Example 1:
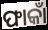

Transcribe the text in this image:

ଫାକାଁ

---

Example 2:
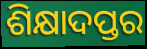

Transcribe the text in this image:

ଶିକ୍ଷାଦପ୍ତର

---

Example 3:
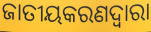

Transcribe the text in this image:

ଜାତୀୟକରଣଦ୍ୱାରା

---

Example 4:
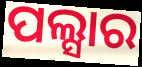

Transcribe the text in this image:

ପଲ୍ସାର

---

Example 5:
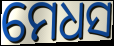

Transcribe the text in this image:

ମେଧସ